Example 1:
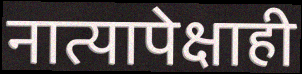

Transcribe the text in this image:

नात्यापेक्षाही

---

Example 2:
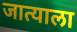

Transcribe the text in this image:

जात्याला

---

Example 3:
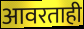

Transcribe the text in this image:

आवरताही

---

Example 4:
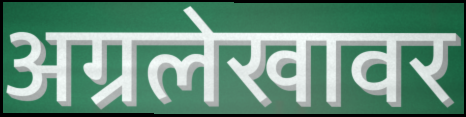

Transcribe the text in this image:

अग्रलेखावर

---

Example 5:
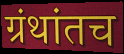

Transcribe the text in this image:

ग्रंथांतच